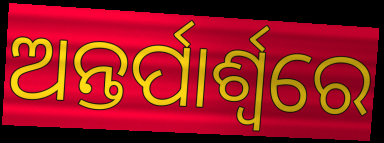
ଅନ୍ତର୍ପାର୍ଶ୍ୱରେ